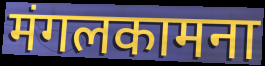
मंगलकामना